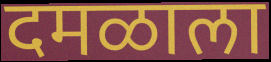
दमळाला